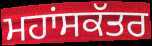
ਮਹਾਂਸਕੱਤਰ